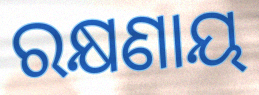
ରକ୍ଷଣାୟ